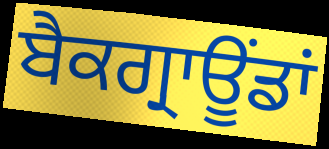
ਬੈਕਗ੍ਰਾਊਂਡਾਂ